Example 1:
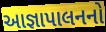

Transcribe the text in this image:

આજ્ઞાપાલનનો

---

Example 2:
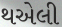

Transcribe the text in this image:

થએલી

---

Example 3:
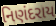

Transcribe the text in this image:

નિણંદરાય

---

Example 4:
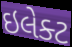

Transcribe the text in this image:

ઇલેક્ટ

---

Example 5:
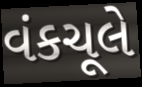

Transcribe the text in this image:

વંકચૂલે